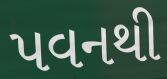
પવનથી